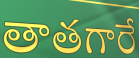
తాతగారే